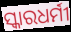
ସ୍କାରଧର୍ମୀ